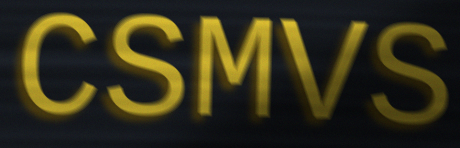
CSMVS